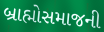
બ્રાહ્મોસમાજની